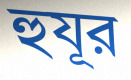
হুযূর